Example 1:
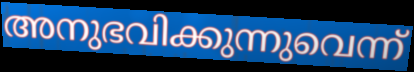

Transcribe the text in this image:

അനുഭവിക്കുന്നുവെന്ന്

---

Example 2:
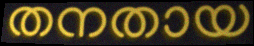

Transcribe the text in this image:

തനതായ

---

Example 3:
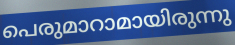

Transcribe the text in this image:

പെരുമാറാമായിരുന്നു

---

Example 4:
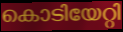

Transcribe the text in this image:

കൊടിയേറ്റി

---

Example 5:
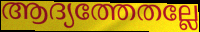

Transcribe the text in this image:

ആദ്യത്തേതല്ലേ